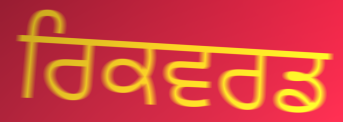
ਰਿਕਵਰਡ